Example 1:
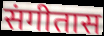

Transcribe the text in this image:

संगीतास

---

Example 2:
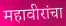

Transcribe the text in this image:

महावीरांचा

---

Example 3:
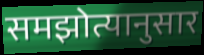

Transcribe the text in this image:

समझोत्यानुसार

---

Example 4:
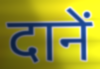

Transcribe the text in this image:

दानें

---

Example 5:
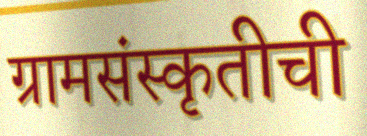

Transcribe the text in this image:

ग्रामसंस्कृतीची